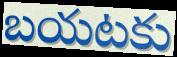
బయటకు